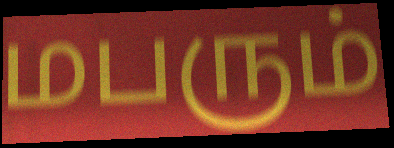
மபரும்